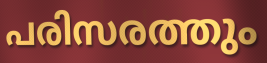
പരിസരത്തും